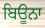
ਬਿਊਨਾ